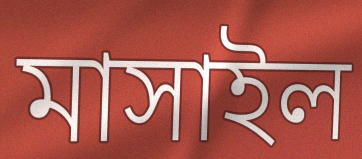
মাসাইল